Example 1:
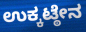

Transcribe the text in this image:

ಉಕ್ಕಟ್ಠೇನ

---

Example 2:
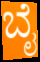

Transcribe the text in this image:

ಬೈ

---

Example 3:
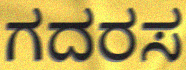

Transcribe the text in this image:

ಗದರಸ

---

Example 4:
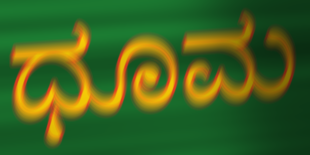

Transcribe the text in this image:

ಧೂಮ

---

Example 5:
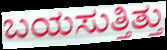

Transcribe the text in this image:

ಬಯಸುತ್ತಿತ್ತು